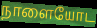
நாளையோட